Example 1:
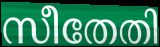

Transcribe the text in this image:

സീതേതി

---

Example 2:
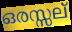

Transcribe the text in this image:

ഒരസ്സല്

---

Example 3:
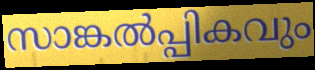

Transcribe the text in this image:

സാങ്കൽപ്പികവും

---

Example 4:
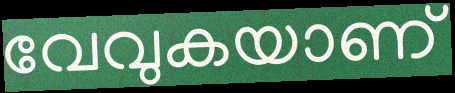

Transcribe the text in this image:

വേവുകയാണ്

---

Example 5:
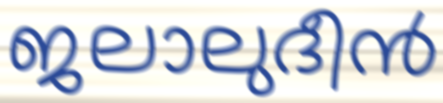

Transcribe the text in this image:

ജലാലുദീൻ